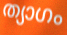
ത്യാഗം